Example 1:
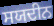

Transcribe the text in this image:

ਸਯਦੀਨ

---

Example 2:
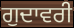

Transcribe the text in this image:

ਗੁਦਾਵਰੀ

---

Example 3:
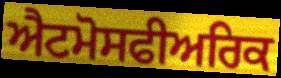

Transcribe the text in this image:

ਐਟਮੋਸਫੀਅਰਿਕ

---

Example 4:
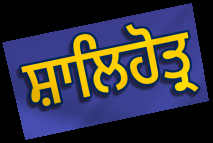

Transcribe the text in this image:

ਸ਼ਾਲਿਹੋਤ੍ਰ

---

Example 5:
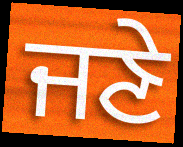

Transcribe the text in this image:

ਜਣੇ